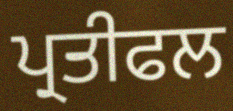
ਪ੍ਰਤੀਫਲ